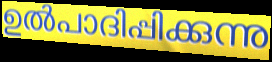
ഉൽപാദിപ്പിക്കുന്നു